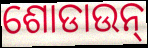
ଶୋଡାଉନ୍